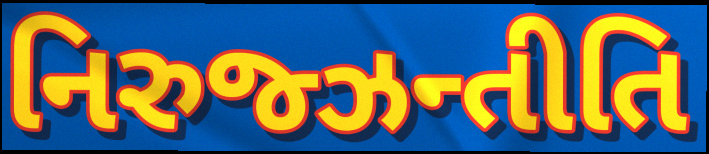
નિરુજ્ઝન્તીતિ